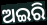
ଅଇରି